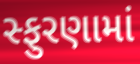
સ્ફુરણામાં